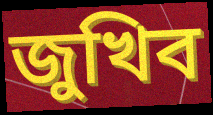
জুখিব